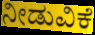
ನೀಡುವಿಕೆ